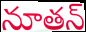
నూతన్